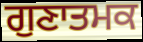
ਗੁਣਾਤਮਕ